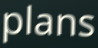
plans